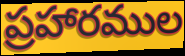
ప్రహారముల